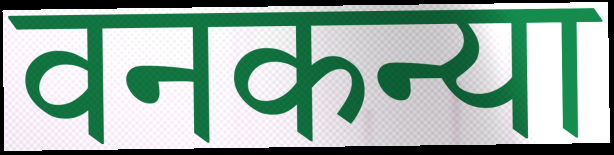
वनकन्या